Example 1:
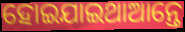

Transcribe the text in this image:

ହୋଇଯାଇଥାଆନ୍ତେ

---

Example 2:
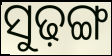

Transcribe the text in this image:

ସୁଢ଼ଙ୍ଗ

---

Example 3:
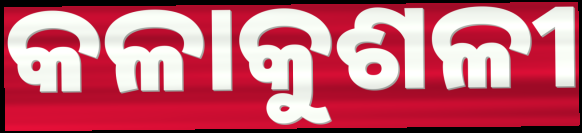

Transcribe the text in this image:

କଳାକୁଶଳୀ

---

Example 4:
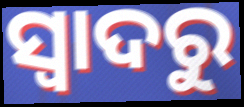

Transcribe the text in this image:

ସ୍ବାଦରୁ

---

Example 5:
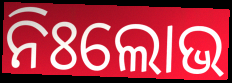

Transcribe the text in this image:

ନିଃଲୋଭ